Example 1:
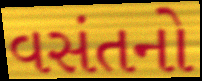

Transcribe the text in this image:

વસંતનો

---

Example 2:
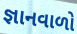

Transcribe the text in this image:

જ્ઞાનવાળો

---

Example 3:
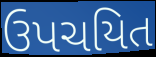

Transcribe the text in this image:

ઉપચયિત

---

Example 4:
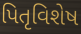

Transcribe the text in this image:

પિતૃવિશેષ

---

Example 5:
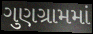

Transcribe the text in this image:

ગુણગ્રામમાં